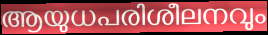
ആയുധപരിശീലനവും